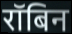
रॉबिन